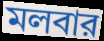
মলবার